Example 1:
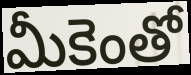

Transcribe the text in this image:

మీకెంతో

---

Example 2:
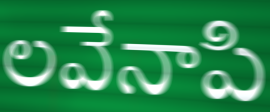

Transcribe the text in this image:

లవేనాపి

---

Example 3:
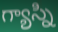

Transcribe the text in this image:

గ్యాస్ని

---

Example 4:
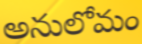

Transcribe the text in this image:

అనులోమం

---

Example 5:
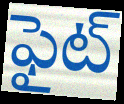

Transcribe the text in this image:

ఫైట్